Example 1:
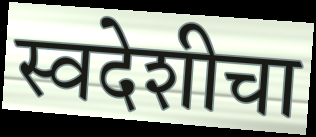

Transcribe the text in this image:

स्वदेशीचा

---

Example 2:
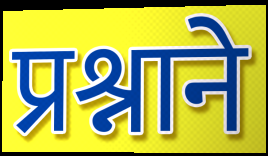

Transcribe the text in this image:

प्रश्नाने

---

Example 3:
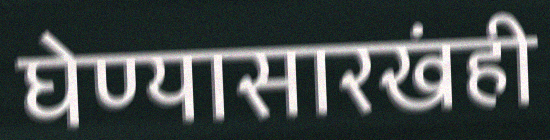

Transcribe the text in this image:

घेण्यासारखंही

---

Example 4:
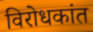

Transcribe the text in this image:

विरोधकांत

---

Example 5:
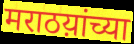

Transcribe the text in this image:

मराठय़ांच्या